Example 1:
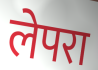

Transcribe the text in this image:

लेपरा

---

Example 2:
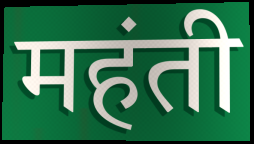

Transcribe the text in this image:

महंती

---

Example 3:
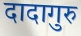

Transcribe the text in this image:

दादागुरु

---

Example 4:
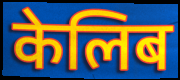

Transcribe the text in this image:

केलिब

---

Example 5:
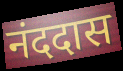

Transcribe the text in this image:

नंददास